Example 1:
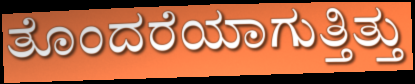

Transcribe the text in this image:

ತೊಂದರೆಯಾಗುತ್ತಿತ್ತು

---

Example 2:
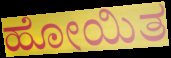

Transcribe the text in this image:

ಹೋಯಿತ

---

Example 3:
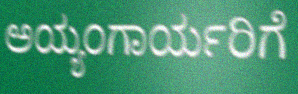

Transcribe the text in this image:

ಅಯ್ಯಂಗಾರ್ಯರಿಗೆ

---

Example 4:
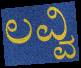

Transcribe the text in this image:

ಲವ್ವಿ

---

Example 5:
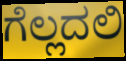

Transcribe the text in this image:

ಗೆಲ್ಲದಲಿ